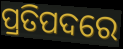
ପ୍ରତିପଦରେ